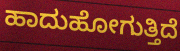
ಹಾದುಹೋಗುತ್ತಿದೆ